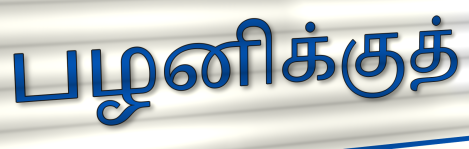
பழனிக்குத்